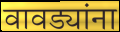
वावड्यांना